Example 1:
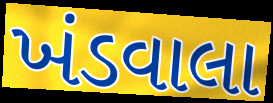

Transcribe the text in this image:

ખંડવાલા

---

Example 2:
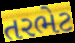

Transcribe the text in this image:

તરભેટ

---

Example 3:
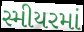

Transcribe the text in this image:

સ્મીયરમાં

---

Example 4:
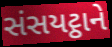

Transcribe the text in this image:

સંસયટ્ઠાને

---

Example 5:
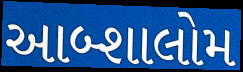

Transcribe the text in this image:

આબ્શાલોમ